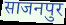
साजनपुर